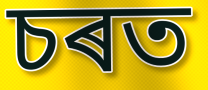
চৰত